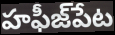
హఫీజ్‌పేట